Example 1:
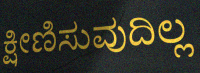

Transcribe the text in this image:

ಕ್ಷೀಣಿಸುವುದಿಲ್ಲ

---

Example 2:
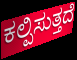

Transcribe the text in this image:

ಕಲ್ಪಿಸುತ್ತದೆ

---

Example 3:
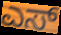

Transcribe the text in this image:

ಎಸ್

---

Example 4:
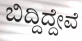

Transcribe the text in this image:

ಬಿದ್ದಿದ್ದೇವೆ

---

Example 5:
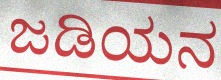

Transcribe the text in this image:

ಜಡಿಯನ